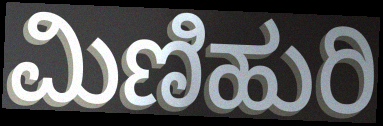
ಮಿಣಿಹುರಿ